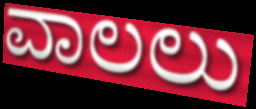
ವಾಲಲು